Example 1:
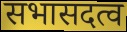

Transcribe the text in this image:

सभासदत्व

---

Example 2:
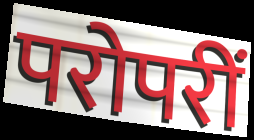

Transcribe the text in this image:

परोपरीं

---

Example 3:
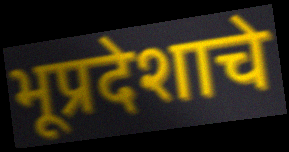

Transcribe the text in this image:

भूप्रदेशाचे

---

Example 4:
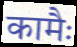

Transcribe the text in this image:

कामैः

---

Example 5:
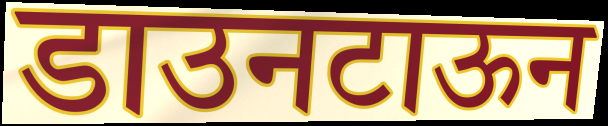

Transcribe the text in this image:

डाउनटाऊन